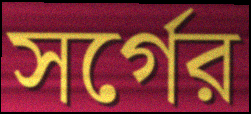
সর্গের